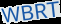
WBRT